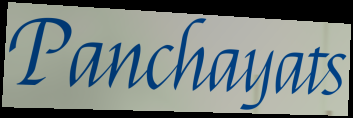
Panchayats